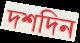
দশদিন